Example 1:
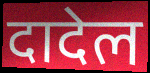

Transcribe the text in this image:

दादेल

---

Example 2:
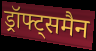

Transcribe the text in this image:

ड्रॉफ्ट्समैन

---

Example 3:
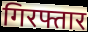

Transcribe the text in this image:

गिरफ्तार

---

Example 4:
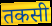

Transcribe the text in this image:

तकसी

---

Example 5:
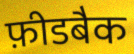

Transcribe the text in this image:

फ़ीडबैक